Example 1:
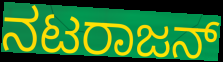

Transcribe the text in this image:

ನಟರಾಜನ್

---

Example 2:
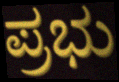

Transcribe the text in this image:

ಪ್ರಭು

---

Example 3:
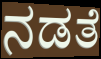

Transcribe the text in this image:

ನಡತೆ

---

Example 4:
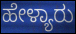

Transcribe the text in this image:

ಹೇಳ್ಯಾರು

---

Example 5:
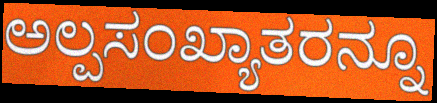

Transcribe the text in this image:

ಅಲ್ಪಸಂಖ್ಯಾತರನ್ನೂ